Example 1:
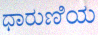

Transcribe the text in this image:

ಧಾರುಣಿಯ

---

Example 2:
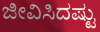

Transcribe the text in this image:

ಜೀವಿಸಿದಷ್ಟು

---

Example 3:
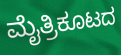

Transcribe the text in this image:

ಮೈತ್ರಿಕೂಟದ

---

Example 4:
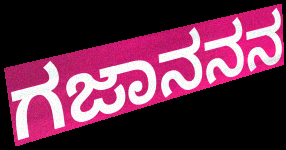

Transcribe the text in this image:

ಗಜಾನನನ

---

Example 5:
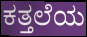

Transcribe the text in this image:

ಕತ್ತಲೆಯ